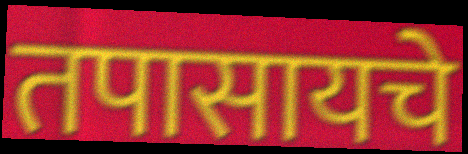
तपासायचे